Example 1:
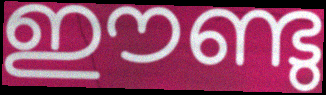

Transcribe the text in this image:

ഈണ്ടു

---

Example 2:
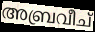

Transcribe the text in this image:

അബ്രവീച്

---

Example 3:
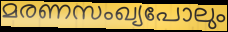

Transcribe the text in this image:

മരണസംഖ്യപോലും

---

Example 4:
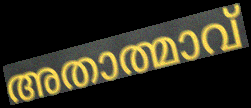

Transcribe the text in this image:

അതാത്മാവ്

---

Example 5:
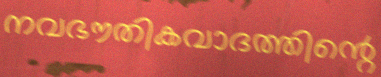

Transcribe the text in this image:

നവഭൗതികവാദത്തിന്റെ